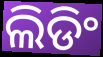
ଲିଡିଂ